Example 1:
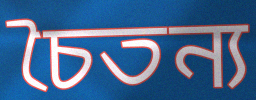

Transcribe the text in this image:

চৈতন্য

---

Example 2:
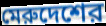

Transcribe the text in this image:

মেরুদেশের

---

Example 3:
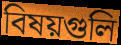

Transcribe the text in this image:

বিষয়গুলি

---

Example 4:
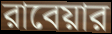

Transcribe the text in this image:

রাবেয়ার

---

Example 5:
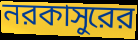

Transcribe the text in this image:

নরকাসুরের